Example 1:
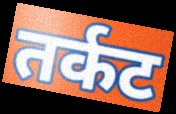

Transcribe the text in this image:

तर्कट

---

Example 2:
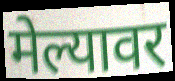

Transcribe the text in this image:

मेल्यावर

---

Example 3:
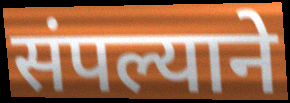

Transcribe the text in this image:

संपल्याने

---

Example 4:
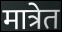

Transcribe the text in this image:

मात्रेत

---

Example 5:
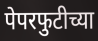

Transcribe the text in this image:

पेपरफुटीच्या